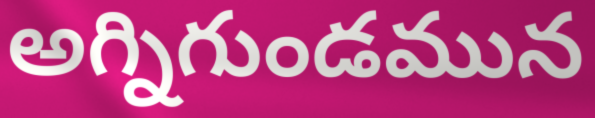
అగ్నిగుండమున